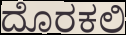
ದೊರಕಲಿ